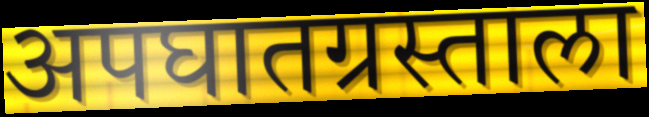
अपघातग्रस्ताला